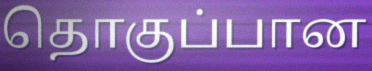
தொகுப்பான